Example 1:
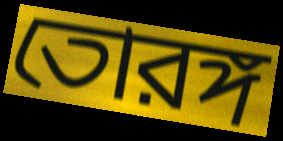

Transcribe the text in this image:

তোরঙ্গ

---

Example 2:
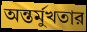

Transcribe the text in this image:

অন্তর্মুখতার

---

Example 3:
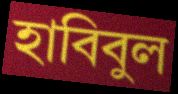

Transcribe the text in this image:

হাবিবুল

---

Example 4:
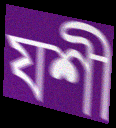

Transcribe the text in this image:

যশী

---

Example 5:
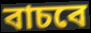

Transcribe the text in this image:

বাচবে